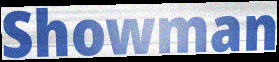
Showman